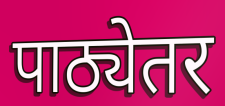
पाठ्येतर